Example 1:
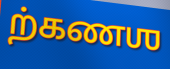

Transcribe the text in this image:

ற்கணஶ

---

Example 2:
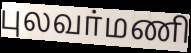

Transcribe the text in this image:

புலவர்மணி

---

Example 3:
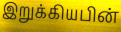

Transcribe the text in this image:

இறுக்கியபின்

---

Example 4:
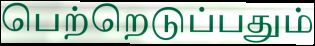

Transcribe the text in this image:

பெற்றெடுப்பதும்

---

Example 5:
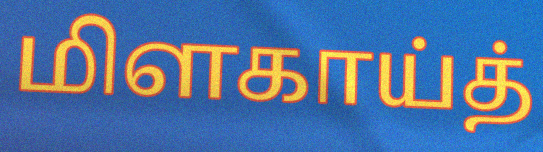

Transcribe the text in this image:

மிளகாய்த்